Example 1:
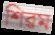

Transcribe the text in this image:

শিৱম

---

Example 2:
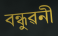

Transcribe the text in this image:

বন্ধুৱনী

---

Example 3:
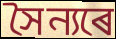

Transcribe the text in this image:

সৈন্যৰে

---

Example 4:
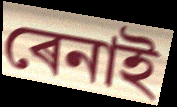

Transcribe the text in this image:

ৰেনাই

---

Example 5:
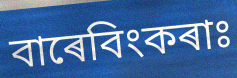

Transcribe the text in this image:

বাৰেবিংকৰাঃ